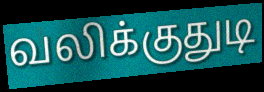
வலிக்குதுடி